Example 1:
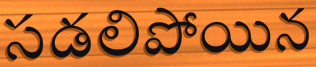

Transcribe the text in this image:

సడలిపోయిన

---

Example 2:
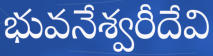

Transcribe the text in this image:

భువనేశ్వరీదేవి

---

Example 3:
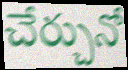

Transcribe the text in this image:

చేర్చునో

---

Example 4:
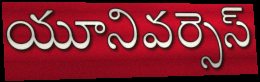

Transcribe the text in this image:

యూనివర్సెస్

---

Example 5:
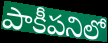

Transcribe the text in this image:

పాకీపనిలో